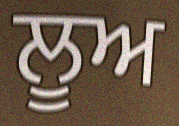
ਲੂਅ